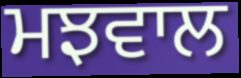
ਮਝਵਾਲ